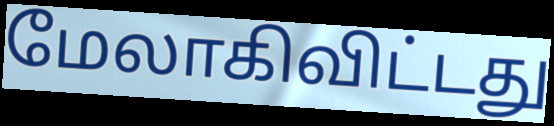
மேலாகிவிட்டது